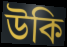
উকি